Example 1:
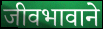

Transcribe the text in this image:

जीवभावाने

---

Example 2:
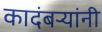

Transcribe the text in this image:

कादंबऱ्यांनी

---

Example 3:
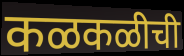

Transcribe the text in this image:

कळकळीची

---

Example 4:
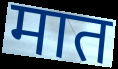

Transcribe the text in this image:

मात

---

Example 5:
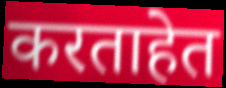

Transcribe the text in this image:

करताहेत